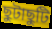
ছুটাছুটি